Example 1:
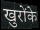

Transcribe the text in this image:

खुरोंके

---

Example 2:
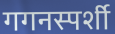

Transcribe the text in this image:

गगनस्पर्शी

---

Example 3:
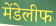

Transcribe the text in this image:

मेंडेलीफ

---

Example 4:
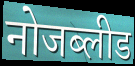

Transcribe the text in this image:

नोजब्लीड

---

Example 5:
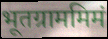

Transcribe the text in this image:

भूतग्राममिमं